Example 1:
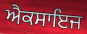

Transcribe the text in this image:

ਐਕਸਾਇਜ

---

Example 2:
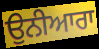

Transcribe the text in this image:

ਉਨੀਆਰਾ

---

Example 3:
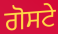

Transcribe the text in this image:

ਗੋਸਟੇ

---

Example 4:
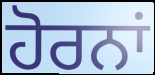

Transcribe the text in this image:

ਹੋਰਨਾਂ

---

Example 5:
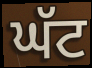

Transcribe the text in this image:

ਘੱਟ